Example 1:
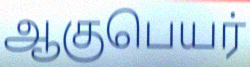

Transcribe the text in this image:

ஆகுபெயர்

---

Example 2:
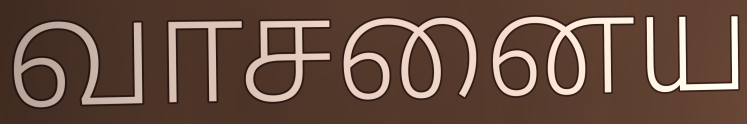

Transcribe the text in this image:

வாசனைய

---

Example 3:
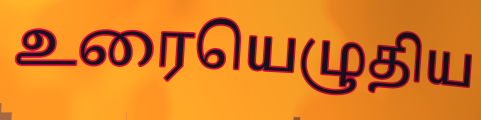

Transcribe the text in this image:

உரையெழுதிய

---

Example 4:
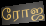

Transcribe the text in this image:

ரோஜ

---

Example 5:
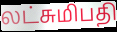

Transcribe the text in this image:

லட்சுமிபதி